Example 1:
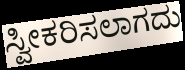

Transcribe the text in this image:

ಸ್ವೀಕರಿಸಲಾಗದು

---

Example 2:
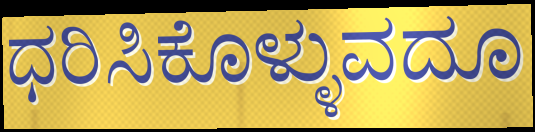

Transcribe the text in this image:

ಧರಿಸಿಕೊಳ್ಳುವದೂ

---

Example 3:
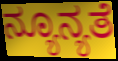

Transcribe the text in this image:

ನ್ಯೂನ್ಯತೆ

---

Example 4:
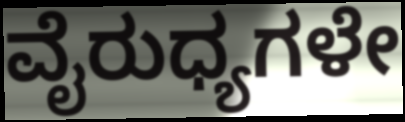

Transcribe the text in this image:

ವೈರುಧ್ಯಗಳೇ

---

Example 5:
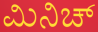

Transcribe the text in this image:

ಮಿನಿಚ್